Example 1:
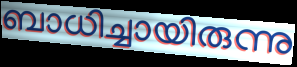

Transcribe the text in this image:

ബാധിച്ചായിരുന്നു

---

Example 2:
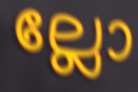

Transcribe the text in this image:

ല്ലോ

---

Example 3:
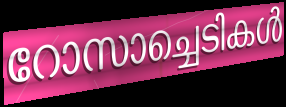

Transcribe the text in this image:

റോസാച്ചെടികൾ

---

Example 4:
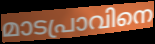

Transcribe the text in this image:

മാടപ്രാവിനെ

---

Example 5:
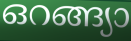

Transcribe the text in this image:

ഒറങ്ങ്യാ